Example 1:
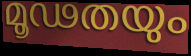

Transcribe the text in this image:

മൂഢതയും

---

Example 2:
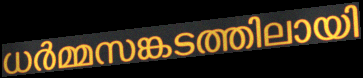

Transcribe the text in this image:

ധർമ്മസങ്കടത്തിലായി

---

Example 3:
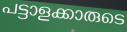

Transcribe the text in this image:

പട്ടാളക്കാരുടെ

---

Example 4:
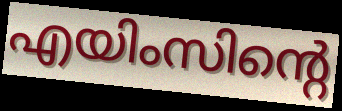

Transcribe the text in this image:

എയിംസിന്റെ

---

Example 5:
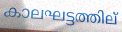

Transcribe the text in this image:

കാലഘട്ടത്തില്